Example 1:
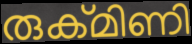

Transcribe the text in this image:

രുക്മിണി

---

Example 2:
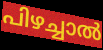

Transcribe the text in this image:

പിഴച്ചാൽ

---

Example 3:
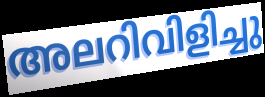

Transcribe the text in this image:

അലറിവിളിച്ചു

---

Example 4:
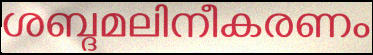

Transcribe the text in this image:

ശബ്ദമലിനീകരണം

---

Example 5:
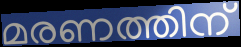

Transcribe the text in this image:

മരണത്തിന്